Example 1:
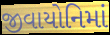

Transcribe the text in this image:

જીવાયોનિમાં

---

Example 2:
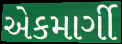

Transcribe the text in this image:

એકમાર્ગી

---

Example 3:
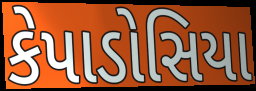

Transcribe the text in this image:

કેપાડોસિયા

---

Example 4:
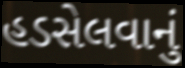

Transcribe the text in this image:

હડસેલવાનું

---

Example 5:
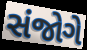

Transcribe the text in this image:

સંજોગે